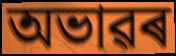
অভাৱৰ